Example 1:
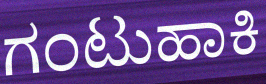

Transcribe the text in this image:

ಗಂಟುಹಾಕಿ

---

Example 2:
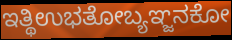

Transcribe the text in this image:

ಇತ್ಥಿಉಭತೋಬ್ಯಞ್ಜನಕೋ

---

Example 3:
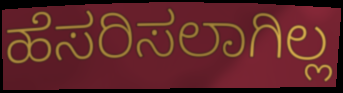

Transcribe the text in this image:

ಹೆಸರಿಸಲಾಗಿಲ್ಲ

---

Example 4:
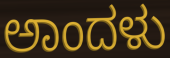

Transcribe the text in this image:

ಅಾಂದಳು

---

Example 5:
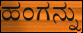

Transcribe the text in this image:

ಹಂಗನ್ನು